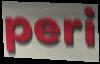
peri